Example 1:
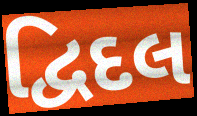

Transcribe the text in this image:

દ્વિદલ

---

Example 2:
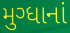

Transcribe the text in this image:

મુગ્ધાનાં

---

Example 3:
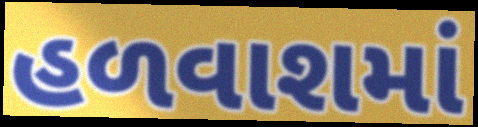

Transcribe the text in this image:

હળવાશમાં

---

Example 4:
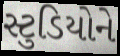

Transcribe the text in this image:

સ્ટુડિયોને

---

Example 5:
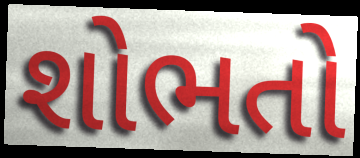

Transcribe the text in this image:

શોભતો